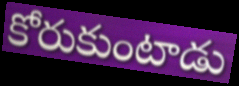
కోరుకుంటాడు